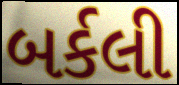
બર્કલી